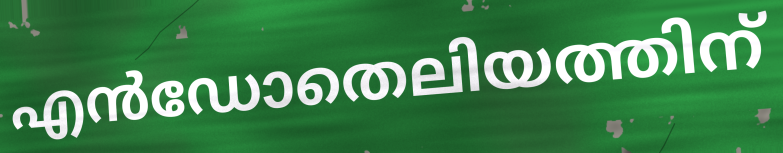
എൻഡോതെലിയത്തിന്